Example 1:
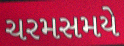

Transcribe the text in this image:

ચરમસમયે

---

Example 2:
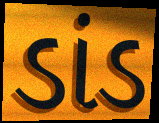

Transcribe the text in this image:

ડાંડ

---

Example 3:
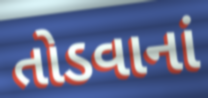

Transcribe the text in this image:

તોડવાનાં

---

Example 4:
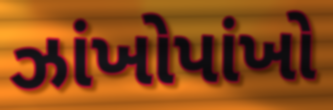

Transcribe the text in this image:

ઝાંખોપાંખો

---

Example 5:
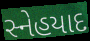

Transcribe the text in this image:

સ્નેહયાદ